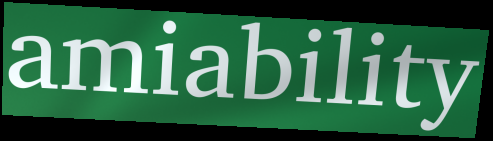
amiability